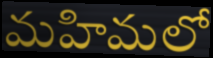
మహిమలో